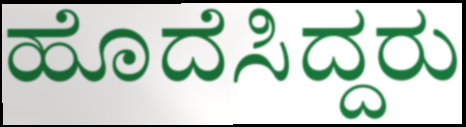
ಹೊದೆಸಿದ್ದರು